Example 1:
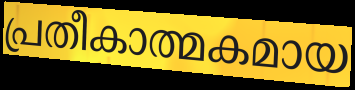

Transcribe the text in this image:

പ്രതീകാത്മകമായ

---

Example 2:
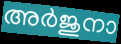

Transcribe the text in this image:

അർജുനാ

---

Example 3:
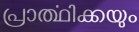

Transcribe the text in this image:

പ്രാൎത്ഥിക്കയും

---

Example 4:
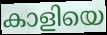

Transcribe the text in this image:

കാളിയെ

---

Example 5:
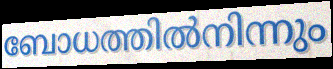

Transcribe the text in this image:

ബോധത്തിൽനിന്നും